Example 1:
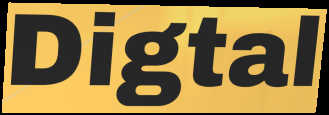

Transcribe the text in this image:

Digtal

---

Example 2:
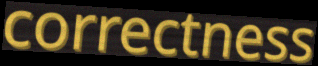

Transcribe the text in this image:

correctness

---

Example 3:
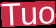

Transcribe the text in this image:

Tuo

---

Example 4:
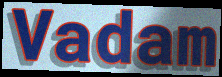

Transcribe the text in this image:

Vadam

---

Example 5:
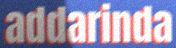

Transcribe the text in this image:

addarinda